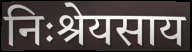
निःश्रेयसाय